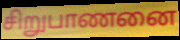
சிறுபாணனை